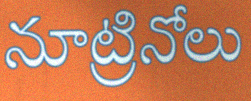
నూట్రినోలు